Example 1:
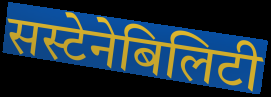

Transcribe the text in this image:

सस्टेनेबिलिटी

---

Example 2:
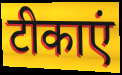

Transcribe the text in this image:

टीकाएं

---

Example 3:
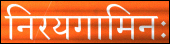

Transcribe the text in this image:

निरयगामिनः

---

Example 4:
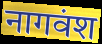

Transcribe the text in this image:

नागवंश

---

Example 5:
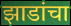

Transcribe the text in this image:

झाडांचा